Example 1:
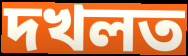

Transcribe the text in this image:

দখলত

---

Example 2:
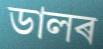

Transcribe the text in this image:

ডালৰ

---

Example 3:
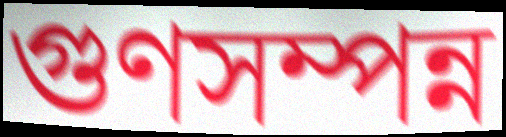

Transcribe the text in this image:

গুণসম্পন্ন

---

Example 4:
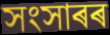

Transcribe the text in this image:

সংসাৰৰ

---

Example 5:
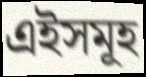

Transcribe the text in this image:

এইসমূহ